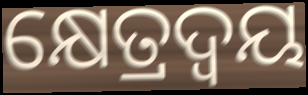
କ୍ଷେତ୍ରଦ୍ଵୟ